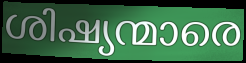
ശിഷ്യന്മാരെ